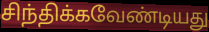
சிந்திக்கவேண்டியது